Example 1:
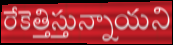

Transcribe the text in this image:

రేకెత్తిస్తున్నాయని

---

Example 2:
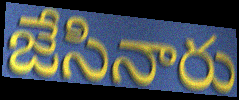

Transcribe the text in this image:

జేసినారు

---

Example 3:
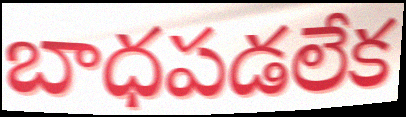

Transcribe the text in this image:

బాధపడలేక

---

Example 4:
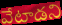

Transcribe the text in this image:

వేటాడని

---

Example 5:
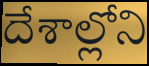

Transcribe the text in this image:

దేశాల్లోని